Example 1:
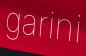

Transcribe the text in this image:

garini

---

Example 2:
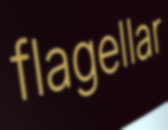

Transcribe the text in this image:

flagellar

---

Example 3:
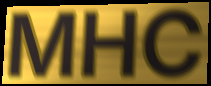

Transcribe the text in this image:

MHC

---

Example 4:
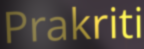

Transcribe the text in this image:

Prakriti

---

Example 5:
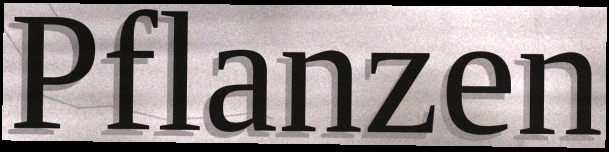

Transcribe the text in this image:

Pflanzen